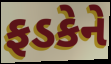
ફડકેને